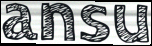
ansu